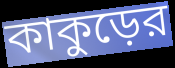
কাকুড়ের